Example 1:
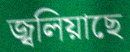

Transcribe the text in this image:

জ্বলিয়াছে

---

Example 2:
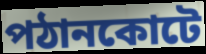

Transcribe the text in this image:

পঠানকোটে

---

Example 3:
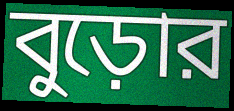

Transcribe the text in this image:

বুড়োর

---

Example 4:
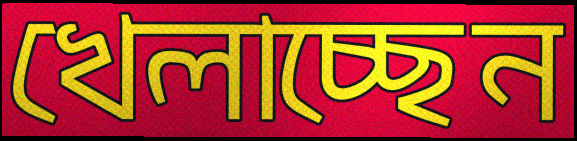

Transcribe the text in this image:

খেলাচ্ছেন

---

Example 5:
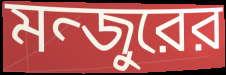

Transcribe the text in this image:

মন্জুরের